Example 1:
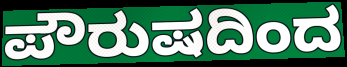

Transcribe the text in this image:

ಪೌರುಷದಿಂದ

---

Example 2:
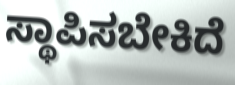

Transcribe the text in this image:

ಸ್ಥಾಪಿಸಬೇಕಿದೆ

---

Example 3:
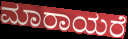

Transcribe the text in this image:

ಮಾರಾಯರೆ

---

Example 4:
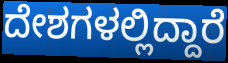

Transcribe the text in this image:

ದೇಶಗಳಲ್ಲಿದ್ದಾರೆ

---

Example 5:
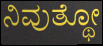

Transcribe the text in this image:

ನಿವುತ್ಥೋ